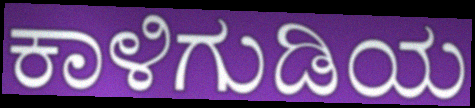
ಕಾಳಿಗುಡಿಯ